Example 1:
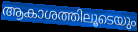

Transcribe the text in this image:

ആകാശത്തിലൂടെയും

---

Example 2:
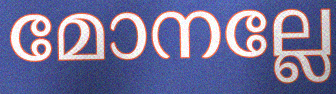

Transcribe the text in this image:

മോനല്ലേ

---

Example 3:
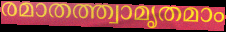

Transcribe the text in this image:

രമാതത്ത്വാമൃതമാം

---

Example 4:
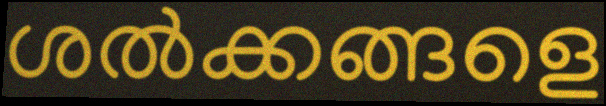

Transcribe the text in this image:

ശൽക്കങ്ങളെ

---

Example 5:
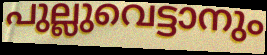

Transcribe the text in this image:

പുല്ലുവെട്ടാനും